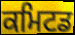
ਕਮਿਟਡ